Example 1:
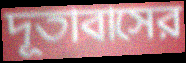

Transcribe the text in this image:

দূতাবাসের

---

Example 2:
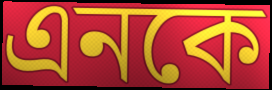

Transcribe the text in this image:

এনকে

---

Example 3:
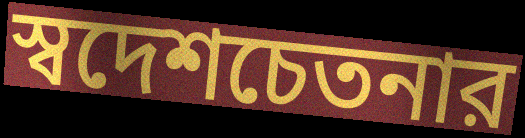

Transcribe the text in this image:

স্বদেশচেতনার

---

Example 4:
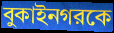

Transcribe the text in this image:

বুকাইনগরকে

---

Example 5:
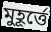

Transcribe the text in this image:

মুহূর্ত্তে